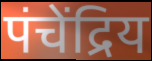
पंचेंद्रिय